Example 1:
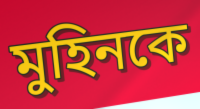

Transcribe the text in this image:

মুহিনকে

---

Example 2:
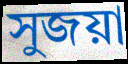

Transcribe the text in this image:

সুজয়া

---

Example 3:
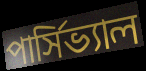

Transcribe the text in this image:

পার্সিভ্যাল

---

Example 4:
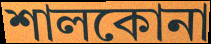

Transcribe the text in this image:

শালকোনা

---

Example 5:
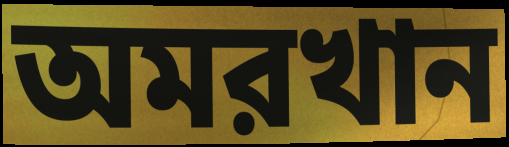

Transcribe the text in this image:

অমরখান